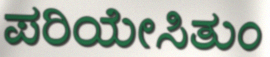
ಪರಿಯೇಸಿತುಂ